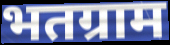
भतग्राम